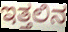
ಇತ್ತಲಿನ